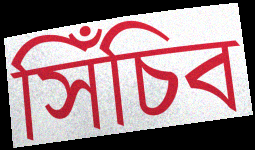
সিঁচিব